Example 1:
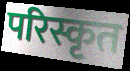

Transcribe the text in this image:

परिस्कृत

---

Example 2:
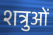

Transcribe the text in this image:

शत्रुओं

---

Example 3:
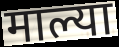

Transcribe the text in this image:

माल्या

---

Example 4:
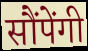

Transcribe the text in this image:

सौंपेंगी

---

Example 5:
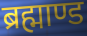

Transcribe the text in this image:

ब्रह्माण्ड